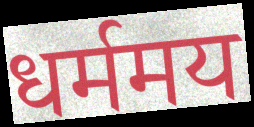
धर्ममय